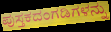
ಪುಸ್ತಕದಂಗಡಿಗಳನ್ನು